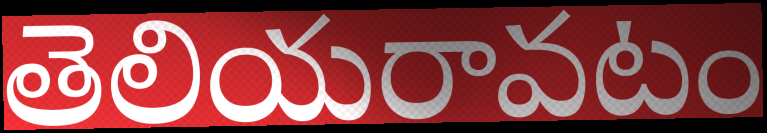
తెలియరావటం